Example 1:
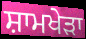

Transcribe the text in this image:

ਸ਼ਾਮਖੇੜਾ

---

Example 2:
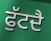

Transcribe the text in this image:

ਫੁੱਟਦੈ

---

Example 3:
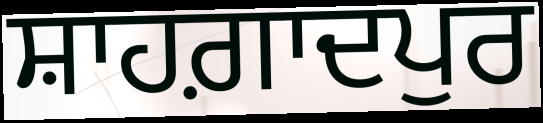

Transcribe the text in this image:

ਸ਼ਾਹਗ਼ਾਦਪੁਰ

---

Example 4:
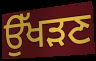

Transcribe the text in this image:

ਉੱਖੜਣ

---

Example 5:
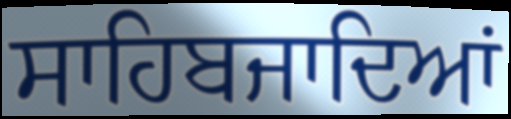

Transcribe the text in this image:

ਸਾਹਿਬਜਾਦਿਆਂ